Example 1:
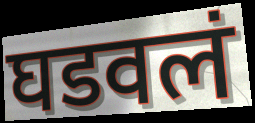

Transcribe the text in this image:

घडवलं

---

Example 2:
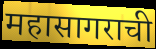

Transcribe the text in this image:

महासागराची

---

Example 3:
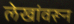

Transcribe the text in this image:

लेखांवरून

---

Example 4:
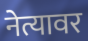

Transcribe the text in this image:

नेत्यावर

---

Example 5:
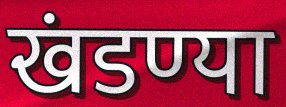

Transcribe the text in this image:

खंडण्या